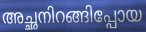
അച്ഛനിറങ്ങിപ്പോയ